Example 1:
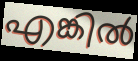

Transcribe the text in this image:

എങ്കിൽ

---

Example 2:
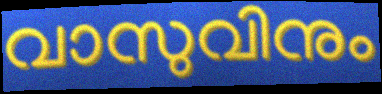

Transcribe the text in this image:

വാസുവിനും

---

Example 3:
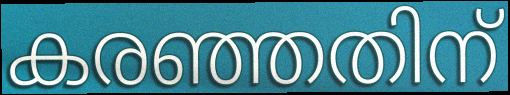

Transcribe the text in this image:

കരഞ്ഞതിന്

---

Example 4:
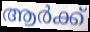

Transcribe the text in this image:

ആർക്ക്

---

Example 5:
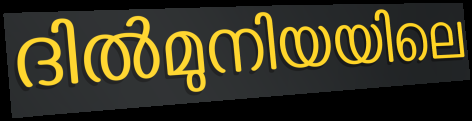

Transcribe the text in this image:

ദിൽമുനിയയിലെ